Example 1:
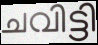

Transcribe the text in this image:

ചവിട്ടി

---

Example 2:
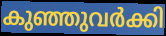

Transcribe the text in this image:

കുഞ്ഞുവർക്കി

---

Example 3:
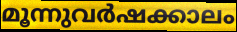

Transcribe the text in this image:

മൂന്നുവർഷക്കാലം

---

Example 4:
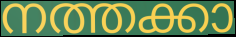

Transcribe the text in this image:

നത്തക്കാ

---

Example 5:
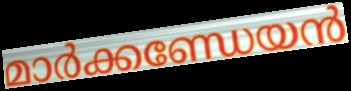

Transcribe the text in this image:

മാർക്കണ്ഡേയൻ